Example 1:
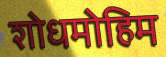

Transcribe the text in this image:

शोधमोहिम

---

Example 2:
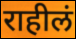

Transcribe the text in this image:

राहीलं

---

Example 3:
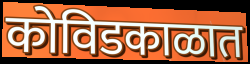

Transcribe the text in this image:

कोविडकाळात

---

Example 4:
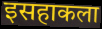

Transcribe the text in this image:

इसहाकला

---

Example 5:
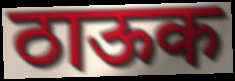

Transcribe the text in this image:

ठाऊक